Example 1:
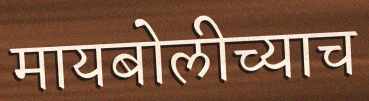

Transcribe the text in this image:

मायबोलीच्याच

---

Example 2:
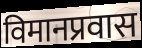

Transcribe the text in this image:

विमानप्रवास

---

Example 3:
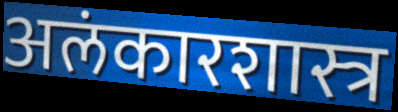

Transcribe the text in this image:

अलंकारशास्त्र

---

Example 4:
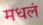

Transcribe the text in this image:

मधलं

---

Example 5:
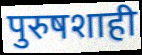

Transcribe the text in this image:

पुरुषशाही